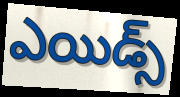
ఎయిడ్స్